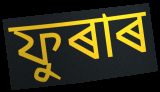
ফুৰাৰ